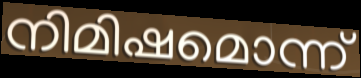
നിമിഷമൊന്ന്